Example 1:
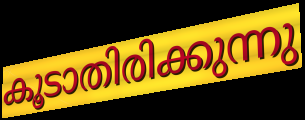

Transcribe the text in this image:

കൂടാതിരിക്കുന്നു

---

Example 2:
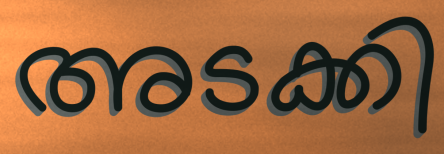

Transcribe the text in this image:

അടക്കി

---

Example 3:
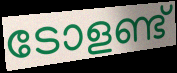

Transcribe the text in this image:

ടോളണ്ട്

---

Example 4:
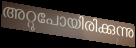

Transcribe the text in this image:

അറ്റുപോയിരിക്കുന്നു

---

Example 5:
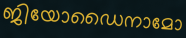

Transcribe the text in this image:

ജിയോഡൈനാമോ